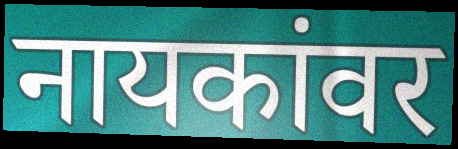
नायकांवर